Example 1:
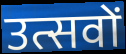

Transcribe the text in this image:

उत्सवों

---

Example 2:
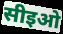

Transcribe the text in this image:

सीइओ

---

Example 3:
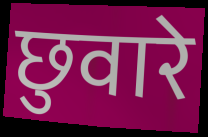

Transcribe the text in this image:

छुवारे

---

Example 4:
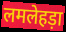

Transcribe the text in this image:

लमलेहड़ा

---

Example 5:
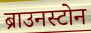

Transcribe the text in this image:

ब्राउनस्टोन